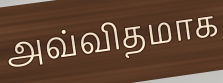
அவ்விதமாக